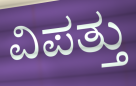
ವಿಪತ್ತು